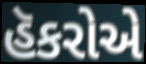
હૅકરોએ